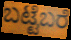
ಬಟ್ಟೆಬರೆ